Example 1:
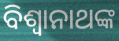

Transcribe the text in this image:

ବିଶ୍ୱାନାଥଙ୍କ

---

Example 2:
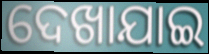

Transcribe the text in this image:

ଦେଖାଯାଇ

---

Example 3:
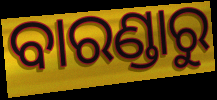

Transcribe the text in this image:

ବାରଣ୍ଡାରୁ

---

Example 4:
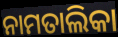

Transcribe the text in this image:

ନାମତାଲିକା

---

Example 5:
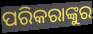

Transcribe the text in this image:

ପରିକରାଙ୍କୁର